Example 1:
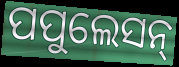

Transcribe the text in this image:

ପପୁଲେସନ୍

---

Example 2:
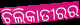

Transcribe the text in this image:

ଚିଲିକାତୀରର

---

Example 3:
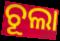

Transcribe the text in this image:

ଚୂଲା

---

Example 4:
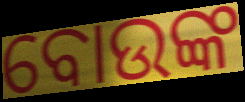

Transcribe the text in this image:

ବୋଉଙ୍କ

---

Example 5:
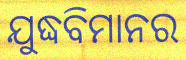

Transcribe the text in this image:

ଯୁଦ୍ଧବିମାନର